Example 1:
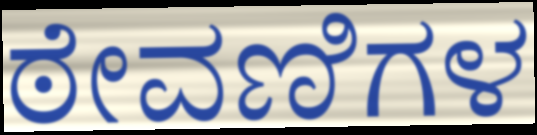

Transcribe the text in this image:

ಠೇವಣಿಗಳ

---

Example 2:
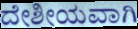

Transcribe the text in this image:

ದೇಶೀಯವಾಗಿ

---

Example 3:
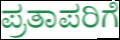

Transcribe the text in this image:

ಪ್ರತಾಪರಿಗೆ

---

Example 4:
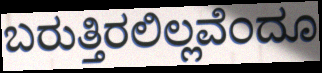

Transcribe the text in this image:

ಬರುತ್ತಿರಲಿಲ್ಲವೆಂದೂ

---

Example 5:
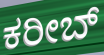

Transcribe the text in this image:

ಕರೀಬ್